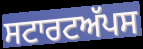
ਸਟਾਰਟਅੱਪਸ